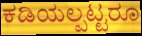
ಕಡಿಯಲ್ಪಟ್ಟರೂ